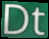
Dt